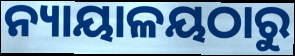
ନ୍ୟାୟାଳୟଠାରୁ